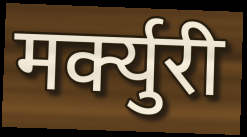
मर्क्युरी